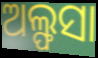
ଅଲ୍ଫସା